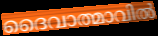
ദൈവാത്മാവിൽ